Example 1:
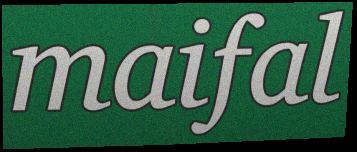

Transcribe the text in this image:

maifal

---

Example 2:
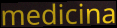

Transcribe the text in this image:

medicina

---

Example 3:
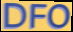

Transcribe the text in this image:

DFO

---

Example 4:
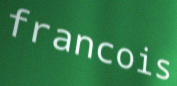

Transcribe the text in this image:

francois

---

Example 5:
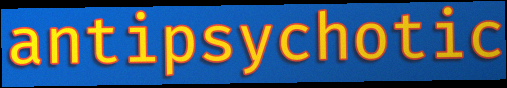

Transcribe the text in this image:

antipsychotic